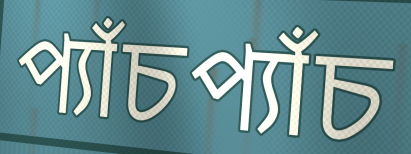
প্যাঁচপ্যাঁচ